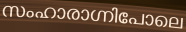
സംഹാരാഗ്നിപോലെ